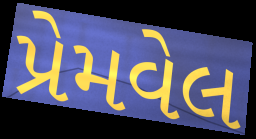
પ્રેમવેલ